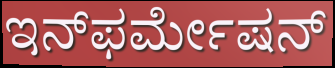
ಇನ್‌ಫರ್ಮೇಷನ್